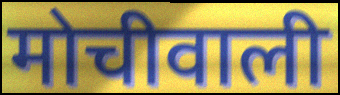
मोचीवाली